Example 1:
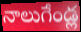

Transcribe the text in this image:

నాలుగేండ్ల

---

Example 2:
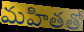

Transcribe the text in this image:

మహితతో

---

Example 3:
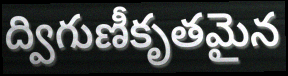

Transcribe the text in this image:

ద్విగుణీకృతమైన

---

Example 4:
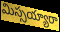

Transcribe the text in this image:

మిస్సయ్యారా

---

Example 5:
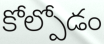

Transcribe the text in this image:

కోల్పోడం